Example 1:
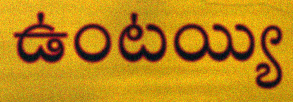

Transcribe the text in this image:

ఉంటయ్యి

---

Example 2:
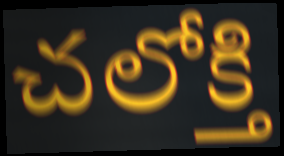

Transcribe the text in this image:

చలోక్తి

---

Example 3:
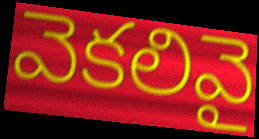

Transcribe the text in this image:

వెకలివై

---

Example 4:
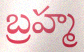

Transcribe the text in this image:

బ్రహ్మ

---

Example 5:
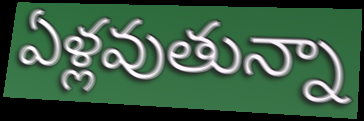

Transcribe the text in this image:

ఏళ్లవుతున్నా